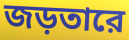
জড়তারে